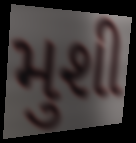
મુશી